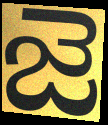
జె